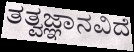
ತತ್ವಜ್ಞಾನವಿದೆ